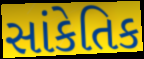
સાંકેતિક